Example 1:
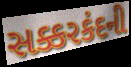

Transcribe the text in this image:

સક્કરકંદની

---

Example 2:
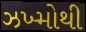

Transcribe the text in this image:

ઝખ્મોથી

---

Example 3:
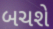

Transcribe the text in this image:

બચશે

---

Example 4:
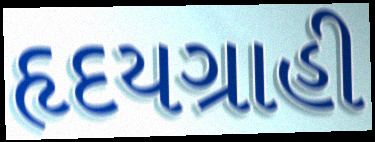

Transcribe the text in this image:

હૃદયગ્રાહી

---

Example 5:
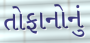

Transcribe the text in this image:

તોફાનોનું